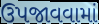
ઉપજાવવામાં